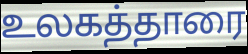
உலகத்தாரை